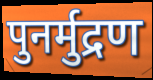
पुनर्मुद्रण